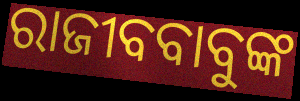
ରାଜୀବବାବୁଙ୍କ